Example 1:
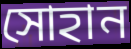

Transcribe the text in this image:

সোহান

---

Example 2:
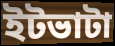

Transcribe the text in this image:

ইটভাটা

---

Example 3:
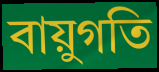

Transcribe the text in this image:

বায়ুগতি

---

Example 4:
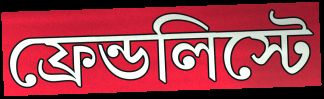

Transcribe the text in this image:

ফ্রেন্ডলিস্টে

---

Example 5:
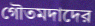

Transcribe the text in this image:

গৌতমদাদের